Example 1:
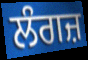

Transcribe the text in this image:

ਲੰਗਜ਼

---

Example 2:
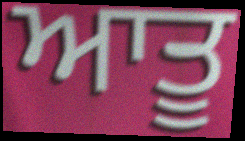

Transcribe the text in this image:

ਆਤੂ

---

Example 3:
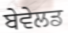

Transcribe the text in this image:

ਬੇਵੇਲਡ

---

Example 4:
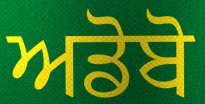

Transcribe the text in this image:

ਅਡੋਬੋ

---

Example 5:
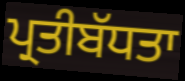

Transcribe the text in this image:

ਪ੍ਰਤੀਬੱਧਤਾ